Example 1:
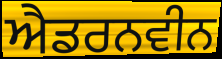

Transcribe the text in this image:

ਐਡਰਨਵੀਨ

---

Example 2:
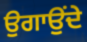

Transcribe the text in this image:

ਉਗਾਉਂਦੇ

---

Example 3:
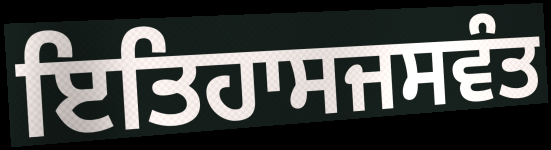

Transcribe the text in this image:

ਇਤਿਹਾਸਜਸਵੰਤ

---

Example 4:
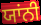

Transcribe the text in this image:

ਯਾਂਨੀ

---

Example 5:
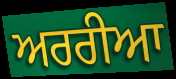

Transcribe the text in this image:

ਅਰਰੀਆ